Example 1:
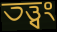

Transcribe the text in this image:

তত্ত্বং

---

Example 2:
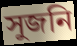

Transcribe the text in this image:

সুজনি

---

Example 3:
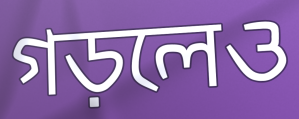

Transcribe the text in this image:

গড়লেও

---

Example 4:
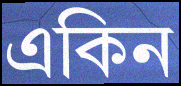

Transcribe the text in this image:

একিন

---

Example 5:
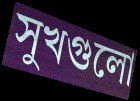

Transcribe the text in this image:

সুখগুলো